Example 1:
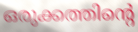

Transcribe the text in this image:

ഒരുക്കത്തിന്റെ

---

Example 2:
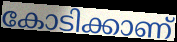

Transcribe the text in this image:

കോടിക്കാണ്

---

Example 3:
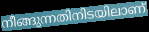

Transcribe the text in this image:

നീങ്ങുന്നതിനിടയിലാണ്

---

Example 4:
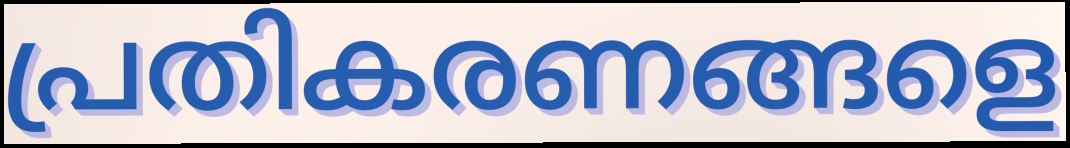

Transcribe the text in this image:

പ്രതികരണങ്ങളെ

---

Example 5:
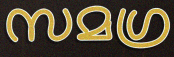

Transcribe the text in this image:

സമഗ്ര